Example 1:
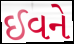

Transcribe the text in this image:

ઈવને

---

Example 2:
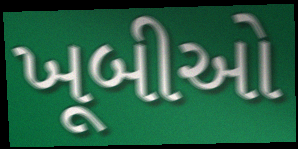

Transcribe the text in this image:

ખૂબીઓ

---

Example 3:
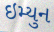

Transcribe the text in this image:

ઇમ્યુન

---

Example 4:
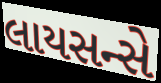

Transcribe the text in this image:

લાયસન્સે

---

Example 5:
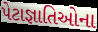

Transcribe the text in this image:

પેટાજ્ઞાતિઓના